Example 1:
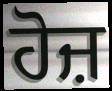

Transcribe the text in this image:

ਹੋਜ਼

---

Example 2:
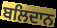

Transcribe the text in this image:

ਬਲਿਦਾਨ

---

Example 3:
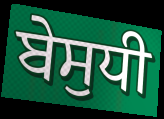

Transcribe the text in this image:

ਬੇਸੁਧੀ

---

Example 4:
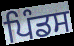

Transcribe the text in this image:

ਪਿੰਡਸ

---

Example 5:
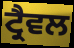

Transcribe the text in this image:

ਟ੍ਰੈਵਲ